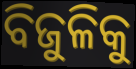
ବିଜୁଳିକୁ